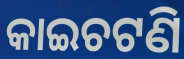
କାଇଚଟଣି